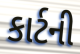
કાર્ટની